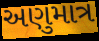
અણુમાત્ર